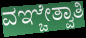
ವಞ್ಚೇತ್ವಾತಿ